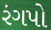
રંગપો